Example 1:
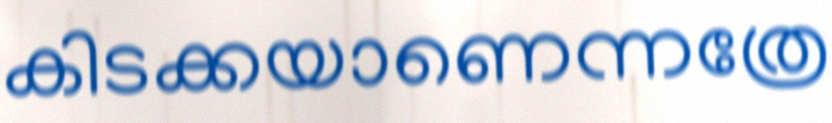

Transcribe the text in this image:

കിടക്കയാണെന്നത്രേ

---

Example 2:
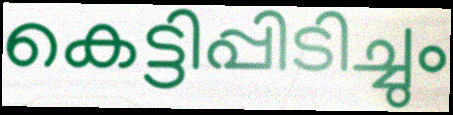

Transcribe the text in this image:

കെട്ടിപ്പിടിച്ചും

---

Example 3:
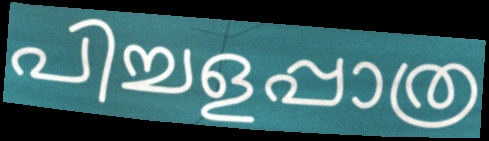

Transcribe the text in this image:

പിച്ചളപ്പാത്ര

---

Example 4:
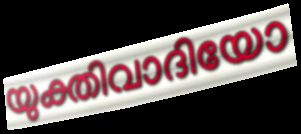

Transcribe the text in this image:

യുക്തിവാദിയോ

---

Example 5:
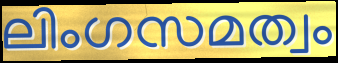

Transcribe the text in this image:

ലിംഗസമത്വം